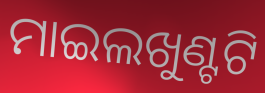
ମାଇଲଖୁଣ୍ଟଟି